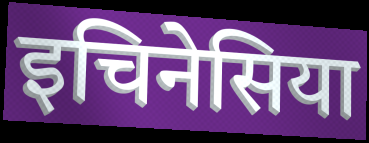
इचिनेसिया